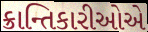
ક્રાન્તિકારીઓએ